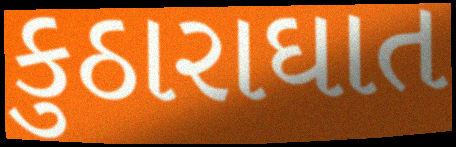
કુઠારાઘાત